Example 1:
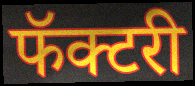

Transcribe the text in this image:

फॅक्टरी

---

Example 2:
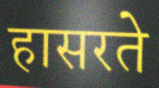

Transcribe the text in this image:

हासरते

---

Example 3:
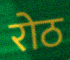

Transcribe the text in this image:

रोठ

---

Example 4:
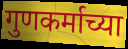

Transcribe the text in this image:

गुणकर्माच्या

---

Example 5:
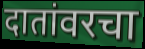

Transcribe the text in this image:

दातांवरचा